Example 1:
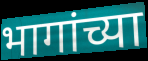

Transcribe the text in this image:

भागांच्या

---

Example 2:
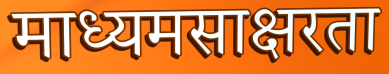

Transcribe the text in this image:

माध्यमसाक्षरता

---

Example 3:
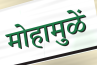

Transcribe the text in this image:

मोहामुळें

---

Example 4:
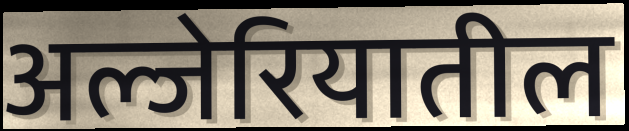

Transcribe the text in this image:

अल्जेरियातील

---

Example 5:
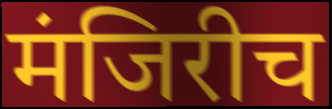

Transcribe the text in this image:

मंजिरीच